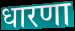
धारणा